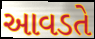
આવડતે